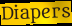
Diapers